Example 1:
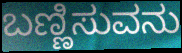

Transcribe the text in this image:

ಬಣ್ಣಿಸುವನು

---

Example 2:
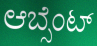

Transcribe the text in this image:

ಆಬ್ಸೆಂಟ್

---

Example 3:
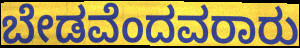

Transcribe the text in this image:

ಬೇಡವೆಂದವರಾರು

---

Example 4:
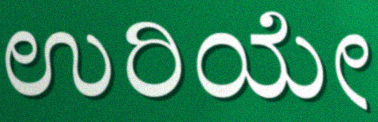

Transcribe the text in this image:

ಉರಿಯೇ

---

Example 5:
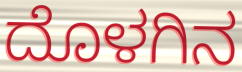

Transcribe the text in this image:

ದೊಳಗಿನ